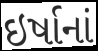
ઇર્ષાનાં